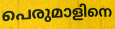
പെരുമാളിനെ